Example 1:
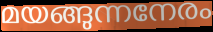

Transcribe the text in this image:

മയങ്ങുന്നനേരം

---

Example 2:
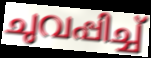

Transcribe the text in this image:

ചുവപ്പിച്ച്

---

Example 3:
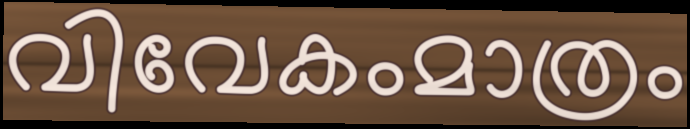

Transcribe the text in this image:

വിവേകംമാത്രം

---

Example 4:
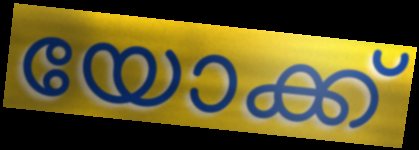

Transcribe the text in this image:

യോക്ക്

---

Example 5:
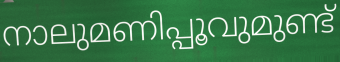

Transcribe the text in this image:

നാലുമണിപ്പൂവുമുണ്ട്